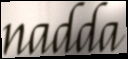
nadda